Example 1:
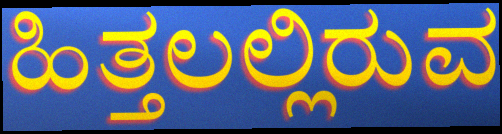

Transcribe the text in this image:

ಹಿತ್ತಲಲ್ಲಿರುವ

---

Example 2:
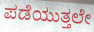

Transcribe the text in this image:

ಪಡೆಯುತ್ತಲೇ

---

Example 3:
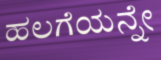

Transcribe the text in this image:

ಹಲಗೆಯನ್ನೇ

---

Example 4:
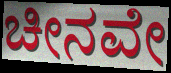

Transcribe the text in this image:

ಚೀನವೇ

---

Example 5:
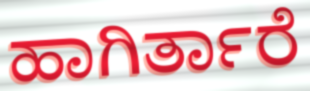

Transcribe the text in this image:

ಹಾಗಿರ್ತಾರೆ